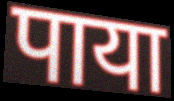
पाया